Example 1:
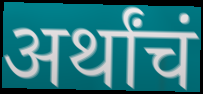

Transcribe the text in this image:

अर्थांचं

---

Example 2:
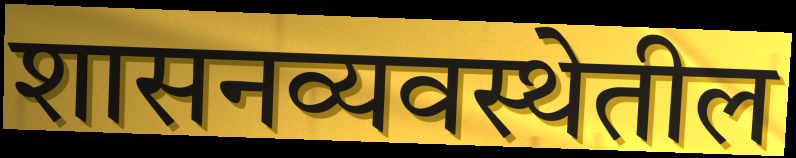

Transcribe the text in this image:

शासनव्यवस्थेतील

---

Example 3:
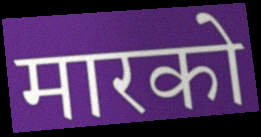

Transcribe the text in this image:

मारको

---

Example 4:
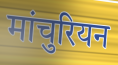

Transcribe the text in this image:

मांचुरियन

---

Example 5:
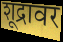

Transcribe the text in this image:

शूद्रावर